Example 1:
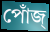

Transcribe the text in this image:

পোঁজ্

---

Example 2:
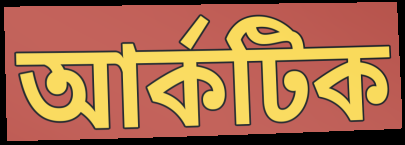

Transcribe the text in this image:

আর্কটিক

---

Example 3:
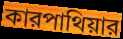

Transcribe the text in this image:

কারপাথিয়ার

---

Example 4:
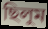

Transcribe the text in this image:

ছিলুম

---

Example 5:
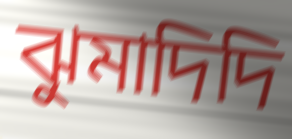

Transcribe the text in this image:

ঝুমাদিদি